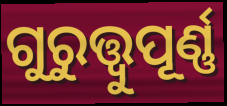
ଗୁରୁତ୍ତ୍ୱୁପୂର୍ଣ୍ଣ